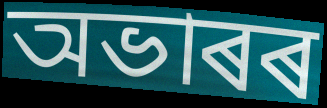
অভাৰৰ